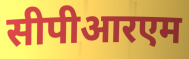
सीपीआरएम